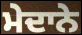
ਮੇਦਾਨੇ